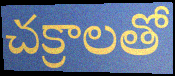
చక్రాలతో